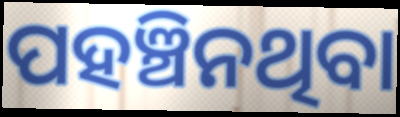
ପହଞ୍ଚିନଥିବା